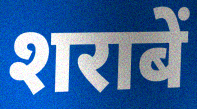
शराबें